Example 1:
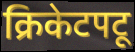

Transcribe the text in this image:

क्रिकेटपटू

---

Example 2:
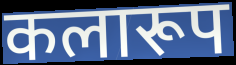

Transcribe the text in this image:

कलारूप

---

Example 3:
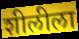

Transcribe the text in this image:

शीलीला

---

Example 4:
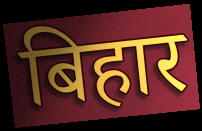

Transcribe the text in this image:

बिहार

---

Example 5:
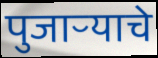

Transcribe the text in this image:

पुजाऱ्याचे